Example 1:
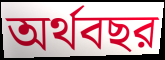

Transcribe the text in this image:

অর্থবছর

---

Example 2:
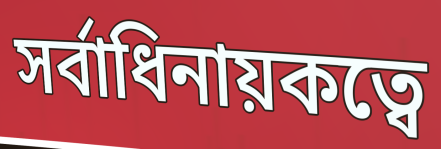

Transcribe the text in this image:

সর্বাধিনায়কত্বে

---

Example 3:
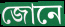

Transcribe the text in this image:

জোনে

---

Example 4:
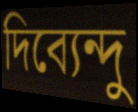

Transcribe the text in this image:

দিব্যেন্দু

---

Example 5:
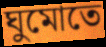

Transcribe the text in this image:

ঘুমোতে